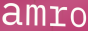
amro